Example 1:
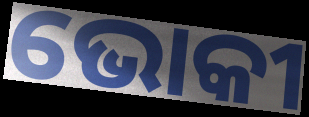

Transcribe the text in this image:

ଭୋକୀ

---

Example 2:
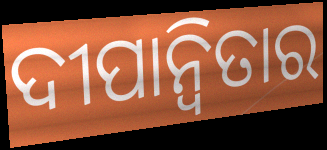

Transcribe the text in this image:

ଦୀପାନ୍ୱିତାର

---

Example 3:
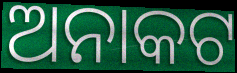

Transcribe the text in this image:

ଅନାକଟ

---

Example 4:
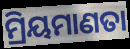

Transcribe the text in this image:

ମ୍ରିୟମାଣତା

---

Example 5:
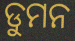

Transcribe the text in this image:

ଡୁମନ